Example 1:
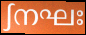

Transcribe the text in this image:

ഽനഘഃ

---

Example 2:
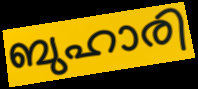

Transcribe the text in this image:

ബുഹാരി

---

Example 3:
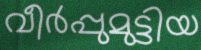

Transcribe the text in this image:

വീർപ്പുമുട്ടിയ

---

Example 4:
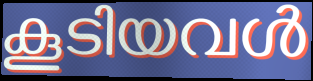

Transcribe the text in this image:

കൂടിയവൾ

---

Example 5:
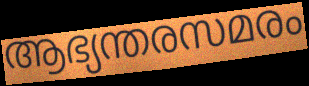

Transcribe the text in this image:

ആഭ്യന്തരസമരം